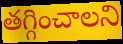
తగ్గించాలని